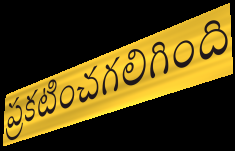
ప్రకటించగలిగింది